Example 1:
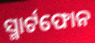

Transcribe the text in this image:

ସ୍ମାର୍ଟଫୋନ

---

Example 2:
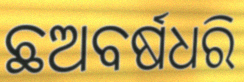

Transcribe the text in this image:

ଛଅବର୍ଷଧରି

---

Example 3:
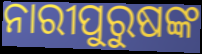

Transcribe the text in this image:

ନାରୀପୁରୁଷଙ୍କ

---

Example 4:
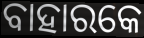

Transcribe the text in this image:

ବାହାରକେ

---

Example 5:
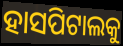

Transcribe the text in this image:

ହାସପିଟାଲକୁ